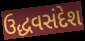
ઉદ્ધવસંદેશ